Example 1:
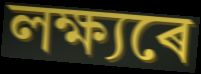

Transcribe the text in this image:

লক্ষ্যৰে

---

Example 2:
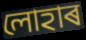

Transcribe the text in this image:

লোহাৰ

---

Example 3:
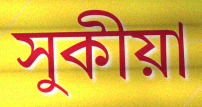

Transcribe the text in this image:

সুকীয়া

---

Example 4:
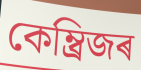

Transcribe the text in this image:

কেম্ব্ৰিজৰ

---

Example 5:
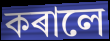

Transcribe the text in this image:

কৰালে